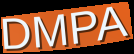
DMPA